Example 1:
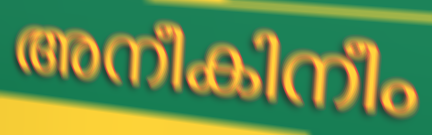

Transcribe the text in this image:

അനീകിനീം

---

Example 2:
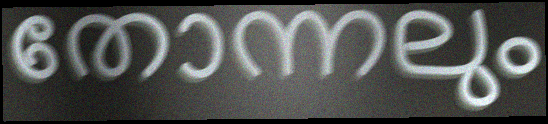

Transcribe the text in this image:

തോന്നലും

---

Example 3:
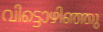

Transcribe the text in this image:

വിട്ടൊഴിഞ്ഞു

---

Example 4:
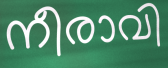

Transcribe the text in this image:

നീരാവി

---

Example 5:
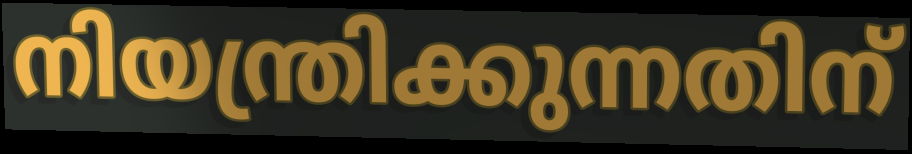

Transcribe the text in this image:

നിയന്ത്രിക്കുന്നതിന്